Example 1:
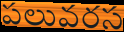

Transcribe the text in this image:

పలువరస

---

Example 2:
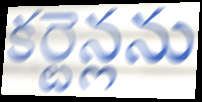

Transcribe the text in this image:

కర్టెన్లను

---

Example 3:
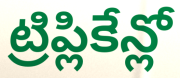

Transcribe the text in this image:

ట్రిప్లికేన్లో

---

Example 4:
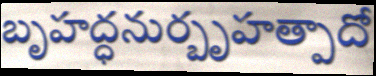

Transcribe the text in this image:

బృహద్ధనుర్బృహత్పాదో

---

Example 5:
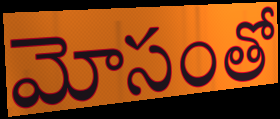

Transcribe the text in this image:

మోసంతో